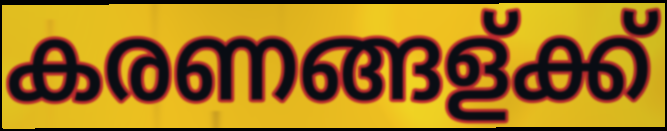
കരണങ്ങള്ക്ക്